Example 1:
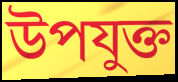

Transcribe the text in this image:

উপযুক্ত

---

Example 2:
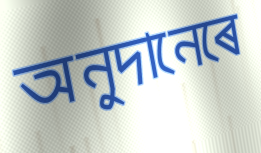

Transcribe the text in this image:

অনুদানেৰে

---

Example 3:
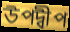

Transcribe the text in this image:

উপদ্বীপ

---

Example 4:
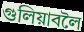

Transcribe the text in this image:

গুলিয়াবলৈ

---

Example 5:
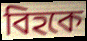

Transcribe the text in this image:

বিহকে